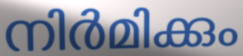
നിർമിക്കും